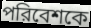
পরিবেশকে